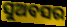
ସୁଅବସର